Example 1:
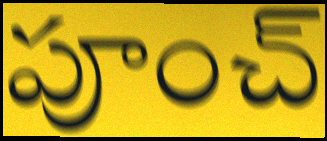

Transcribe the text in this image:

పూంచ్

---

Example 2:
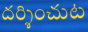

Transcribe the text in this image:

దర్శించుట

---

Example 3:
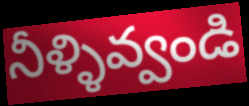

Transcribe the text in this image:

నీళ్ళివ్వండి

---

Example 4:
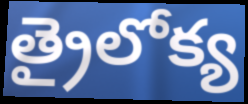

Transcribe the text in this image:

త్రైలోక్య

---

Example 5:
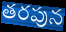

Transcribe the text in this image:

తరపున